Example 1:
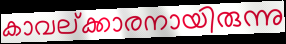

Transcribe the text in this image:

കാവല്ക്കാരനായിരുന്നു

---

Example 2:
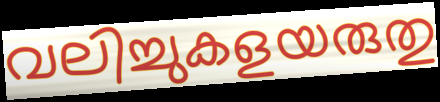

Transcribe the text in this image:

വലിച്ചുകളയരുതു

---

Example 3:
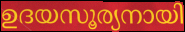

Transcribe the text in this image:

ഉദയസൂര്യനായി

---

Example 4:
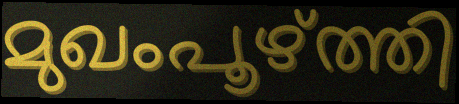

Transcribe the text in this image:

മുഖംപൂഴ്ത്തി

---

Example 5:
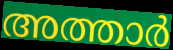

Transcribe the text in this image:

അത്താർ